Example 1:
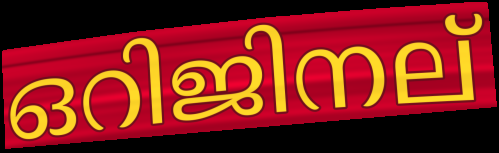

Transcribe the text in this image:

ഒറിജിനല്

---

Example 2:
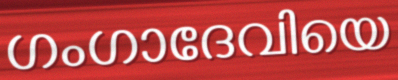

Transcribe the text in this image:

ഗംഗാദേവിയെ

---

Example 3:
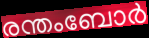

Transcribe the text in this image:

രന്തംബോർ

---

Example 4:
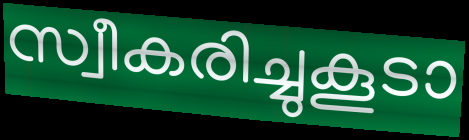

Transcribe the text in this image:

സ്വീകരിച്ചുകൂടാ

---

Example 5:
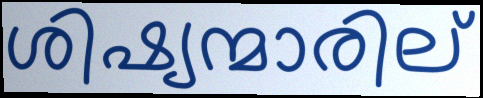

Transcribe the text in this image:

ശിഷ്യന്മാരില്